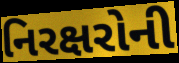
નિરક્ષરોની